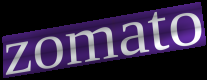
zomato